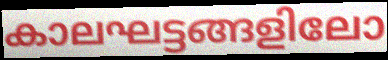
കാലഘട്ടങ്ങളിലോ